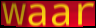
waar